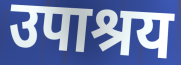
उपाश्रय